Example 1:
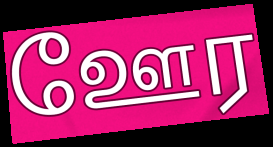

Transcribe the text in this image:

ஊேர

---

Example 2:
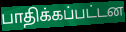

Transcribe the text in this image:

பாதிக்கப்பட்டன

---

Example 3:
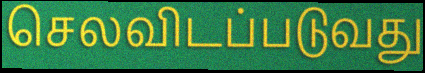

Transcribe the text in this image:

செலவிடப்படுவது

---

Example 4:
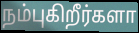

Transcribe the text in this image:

நம்புகிறீர்களா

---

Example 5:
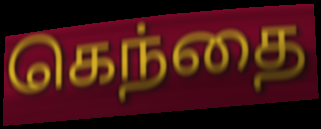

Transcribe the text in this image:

கெந்தை